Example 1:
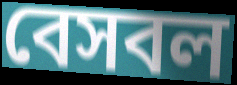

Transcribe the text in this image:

বেসবল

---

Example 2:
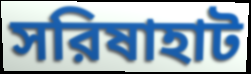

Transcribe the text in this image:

সরিষাহাট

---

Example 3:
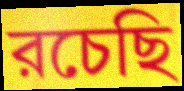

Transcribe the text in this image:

রচেছি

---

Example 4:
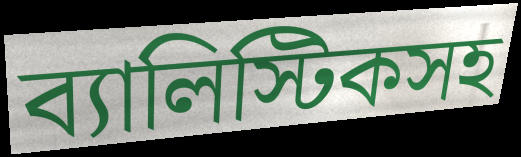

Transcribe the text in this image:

ব্যালিস্টিকসহ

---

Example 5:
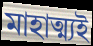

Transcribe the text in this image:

মাহাত্ম্যই